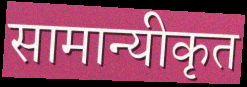
सामान्यीकृत